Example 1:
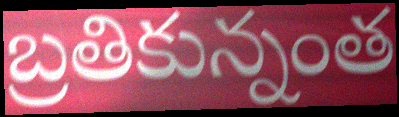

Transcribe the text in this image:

బ్రతికున్నంత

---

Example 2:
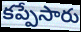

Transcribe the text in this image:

కప్పేసారు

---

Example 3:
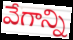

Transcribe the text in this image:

వేగాన్ని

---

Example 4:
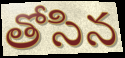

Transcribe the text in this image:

తోసిన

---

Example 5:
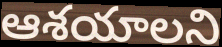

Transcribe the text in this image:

ఆశయాలని